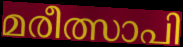
മരീത്സാപി